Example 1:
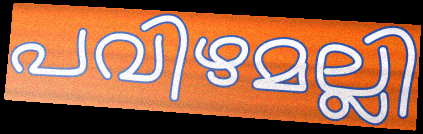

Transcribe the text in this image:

പവിഴമല്ലി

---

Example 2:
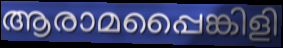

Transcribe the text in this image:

ആരാമപ്പൈങ്കിളി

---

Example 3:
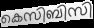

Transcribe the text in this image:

കെസിബിസി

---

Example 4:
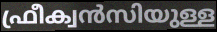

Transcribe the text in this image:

ഫ്രീക്വൻസിയുള്ള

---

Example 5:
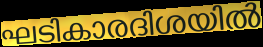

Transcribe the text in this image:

ഘടികാരദിശയിൽ